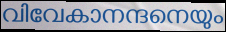
വിവേകാനന്ദനെയും